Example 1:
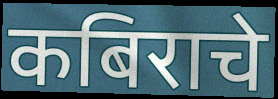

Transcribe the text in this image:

कबिराचे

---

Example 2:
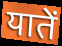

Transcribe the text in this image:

यातें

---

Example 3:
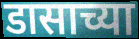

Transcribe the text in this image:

डासाच्या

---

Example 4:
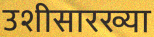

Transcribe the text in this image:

उशीसारख्या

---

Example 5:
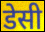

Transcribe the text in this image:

डेसी